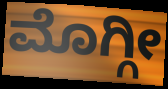
ಮೊಗ್ಗೀ